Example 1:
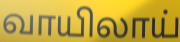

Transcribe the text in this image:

வாயிலாய்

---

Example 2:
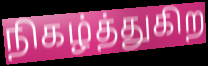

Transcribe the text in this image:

நிகழ்த்துகிற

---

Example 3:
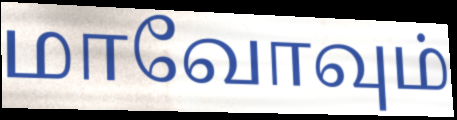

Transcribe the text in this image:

மாவோவும்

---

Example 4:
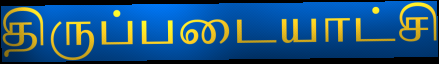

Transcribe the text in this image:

திருப்படையாட்சி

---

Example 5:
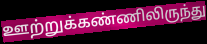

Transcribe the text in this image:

ஊற்றுக்கண்ணிலிருந்து